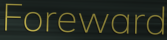
Foreward